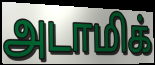
அடாமிக்